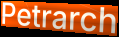
Petrarch